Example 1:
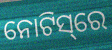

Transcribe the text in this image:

ନୋଟିସ୍‌ରେ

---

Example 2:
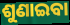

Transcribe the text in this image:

ଶୁଣାଇବା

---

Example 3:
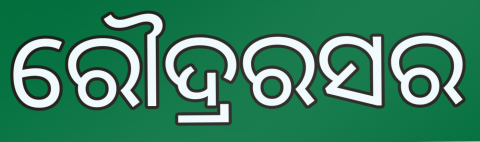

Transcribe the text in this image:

ରୌଦ୍ରରସର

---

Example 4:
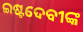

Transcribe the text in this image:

ଇଷ୍ଟଦେବୀଙ୍କ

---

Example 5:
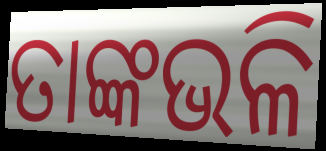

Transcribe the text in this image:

ତାଙ୍କଭଳି